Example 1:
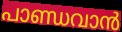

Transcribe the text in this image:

പാണ്ഡവാൻ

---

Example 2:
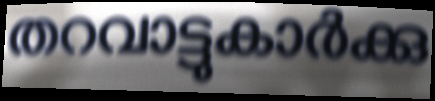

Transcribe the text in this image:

തറവാട്ടുകാർക്കു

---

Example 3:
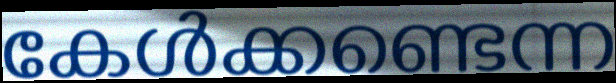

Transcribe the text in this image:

കേൾക്കണ്ടെന്ന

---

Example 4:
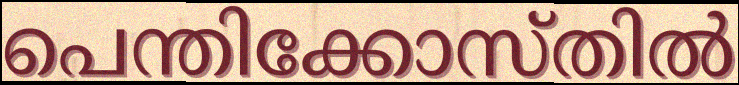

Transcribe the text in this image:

പെന്തിക്കോസ്തിൽ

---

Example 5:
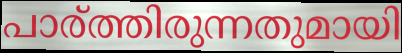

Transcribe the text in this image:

പാര്ത്തിരുന്നതുമായി